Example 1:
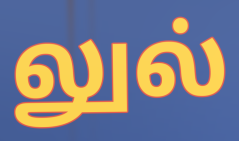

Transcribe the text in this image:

லுல்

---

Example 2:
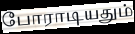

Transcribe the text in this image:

போராடியதும்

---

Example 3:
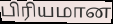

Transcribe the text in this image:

பிரியமான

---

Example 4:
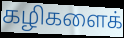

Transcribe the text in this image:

கழிகளைக்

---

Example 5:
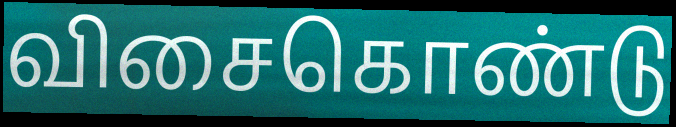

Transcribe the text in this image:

விசைகொண்டு